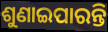
ଶୁଣାଇପାରନ୍ତି